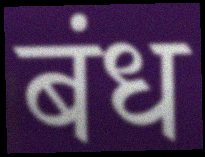
बंध